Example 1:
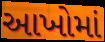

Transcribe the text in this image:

આખોમાં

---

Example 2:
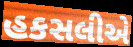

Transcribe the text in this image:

હકસલીએ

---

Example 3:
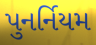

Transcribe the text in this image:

પુનર્નિયમ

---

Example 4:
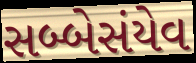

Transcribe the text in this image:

સબ્બેસંયેવ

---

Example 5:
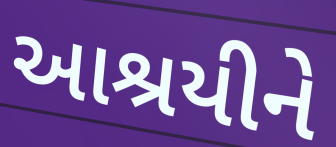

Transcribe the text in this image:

આશ્રયીને